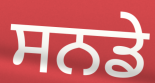
ਸਨਡੇ